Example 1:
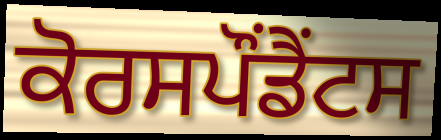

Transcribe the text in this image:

ਕੋਰਸਪੌਂਡੈਂਟਸ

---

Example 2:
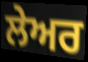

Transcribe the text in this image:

ਲੇਅਰ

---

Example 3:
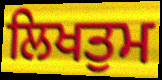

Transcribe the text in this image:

ਲਿਖਤੁਮ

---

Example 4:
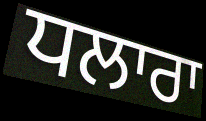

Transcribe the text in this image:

ਧਲਾਰਾ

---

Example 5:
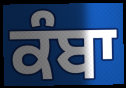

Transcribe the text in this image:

ਕੰਬਾ